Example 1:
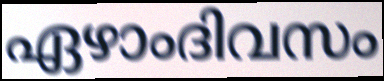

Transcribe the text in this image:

ഏഴാംദിവസം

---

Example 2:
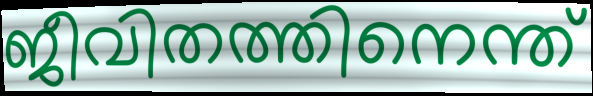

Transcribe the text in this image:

ജീവിതത്തിനെന്ത്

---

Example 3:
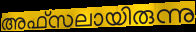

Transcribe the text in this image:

അഫ്സലായിരുന്നു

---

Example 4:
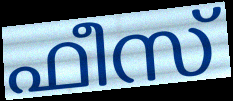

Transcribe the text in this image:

ഫീസ്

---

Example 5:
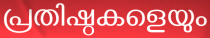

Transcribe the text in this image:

പ്രതിഷ്ഠകളെയും